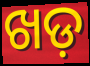
ଖଡ଼